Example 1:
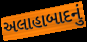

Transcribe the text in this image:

અલાહાબાદનું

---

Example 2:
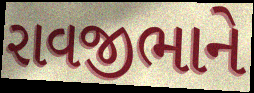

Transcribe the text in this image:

રાવજીભાને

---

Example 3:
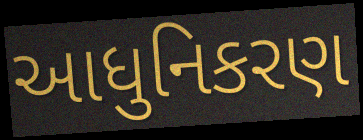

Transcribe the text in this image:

આધુનિકરણ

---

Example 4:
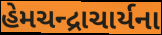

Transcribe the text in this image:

હેમચન્દ્રાચાર્યના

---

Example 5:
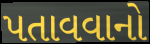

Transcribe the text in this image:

પતાવવાનો